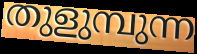
തുളുമ്പുന്ന